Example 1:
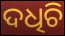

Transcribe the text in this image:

ଦଧିଚି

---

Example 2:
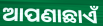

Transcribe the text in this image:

ଆପଣାଛାଏଁ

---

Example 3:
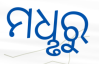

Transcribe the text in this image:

ମଧୢରୁ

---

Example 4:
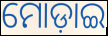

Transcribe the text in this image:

ମୋଡ଼ାଇ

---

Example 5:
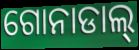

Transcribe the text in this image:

ଗୋନାଡାଲ୍